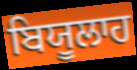
ਬਿਯੂਲਾਹ